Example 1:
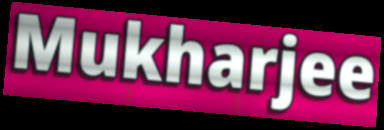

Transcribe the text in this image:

Mukharjee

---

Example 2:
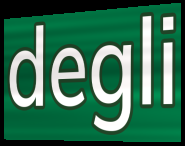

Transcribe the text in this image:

degli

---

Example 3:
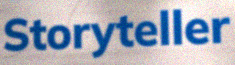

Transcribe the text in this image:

Storyteller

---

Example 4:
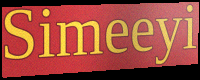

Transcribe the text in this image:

Simeeyi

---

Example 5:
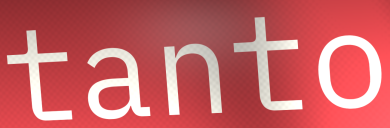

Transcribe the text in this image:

tanto